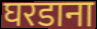
घरडाना